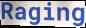
Raging